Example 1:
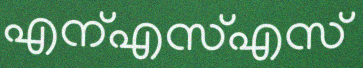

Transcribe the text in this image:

എന്എസ്എസ്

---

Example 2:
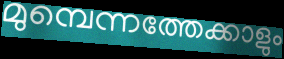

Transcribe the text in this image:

മുമ്പെന്നത്തേക്കാളും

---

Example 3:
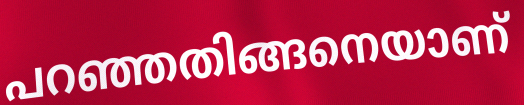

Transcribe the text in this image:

പറഞ്ഞതിങ്ങനെയാണ്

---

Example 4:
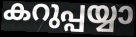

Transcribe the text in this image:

കറുപ്പയ്യാ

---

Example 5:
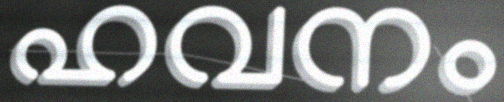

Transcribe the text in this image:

ഹവനം